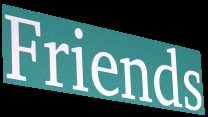
Friends